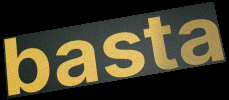
basta